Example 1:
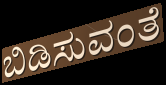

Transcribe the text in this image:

ಬಿಡಿಸುವಂತೆ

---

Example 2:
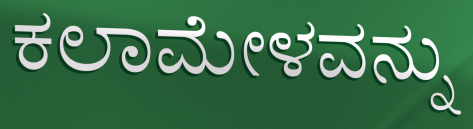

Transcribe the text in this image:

ಕಲಾಮೇಳವನ್ನು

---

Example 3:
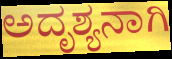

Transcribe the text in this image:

ಅದೃಶ್ಯನಾಗಿ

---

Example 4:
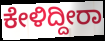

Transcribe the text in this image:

ಕೇಳಿದ್ದೀರಾ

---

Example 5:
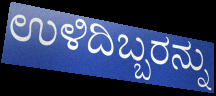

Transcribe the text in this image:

ಉಳಿದಿಬ್ಬರನ್ನು